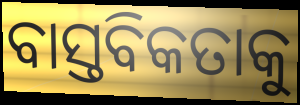
ବାସ୍ତବିକତାକୁ